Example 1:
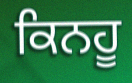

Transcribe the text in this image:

ਕਿਨਹੂ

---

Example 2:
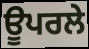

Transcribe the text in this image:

ਊਪਰਲੇ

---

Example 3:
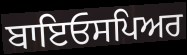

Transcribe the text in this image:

ਬਾਇਓਸਪਿਅਰ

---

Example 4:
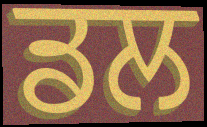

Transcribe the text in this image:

ਡਲ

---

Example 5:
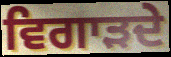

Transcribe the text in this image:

ਵਿਗਾੜਦੇ